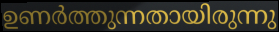
ഉണർത്തുന്നതായിരുന്നു